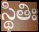
స్థితిః